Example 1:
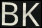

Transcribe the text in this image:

BK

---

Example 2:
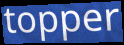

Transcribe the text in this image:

topper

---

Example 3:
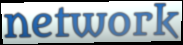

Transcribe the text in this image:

network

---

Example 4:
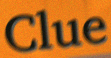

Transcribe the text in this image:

Clue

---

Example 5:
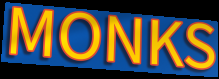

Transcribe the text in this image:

MONKS